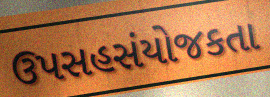
ઉપસહસંયોજકતા